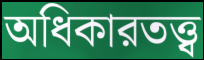
অধিকারতত্ত্ব